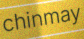
chinmay